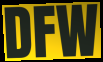
DFW